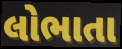
લોભાતા